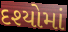
દશ્યોમાં